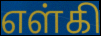
எள்கி